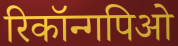
रिकॉन्गपिओ